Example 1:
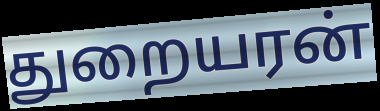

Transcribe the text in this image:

துறையரன்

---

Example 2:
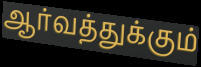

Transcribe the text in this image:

ஆர்வத்துக்கும்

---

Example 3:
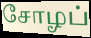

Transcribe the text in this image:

சோழப்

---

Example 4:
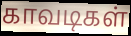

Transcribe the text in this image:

காவடிகள்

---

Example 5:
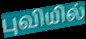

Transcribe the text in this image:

புவியில்